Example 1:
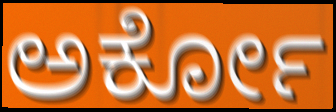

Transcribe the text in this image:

ಅರ್ಕೋ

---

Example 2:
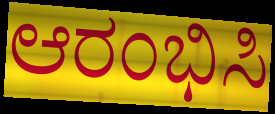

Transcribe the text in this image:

ಆರಂಭಿಸಿ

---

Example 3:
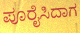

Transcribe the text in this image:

ಪೂರೈಸಿದಾಗ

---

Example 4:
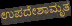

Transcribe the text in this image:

ಉಪದೇಶಾಮೃತ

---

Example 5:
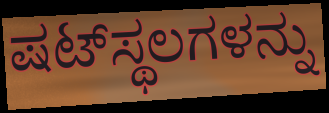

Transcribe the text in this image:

ಷಟ್‌ಸ್ಥಲಗಳನ್ನು